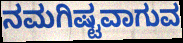
ನಮಗಿಷ್ಟವಾಗುವ